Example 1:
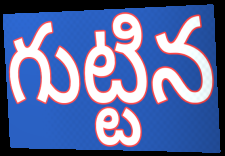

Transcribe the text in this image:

గుట్టిన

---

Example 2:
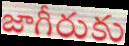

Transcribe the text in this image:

జాగీరుకు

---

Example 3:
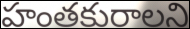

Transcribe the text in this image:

హంతకురాలని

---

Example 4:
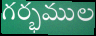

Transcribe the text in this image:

గర్భముల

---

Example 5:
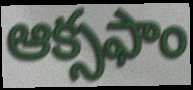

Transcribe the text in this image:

ఆక్సఫాం